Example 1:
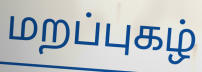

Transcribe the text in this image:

மறப்புகழ்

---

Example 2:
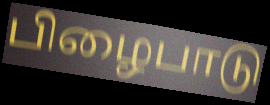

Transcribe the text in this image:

பிழைபாடு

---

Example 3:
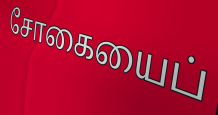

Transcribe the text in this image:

சோகையைப்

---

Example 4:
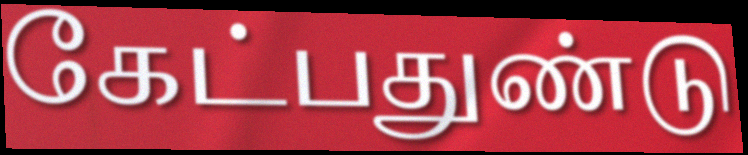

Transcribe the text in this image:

கேட்பதுண்டு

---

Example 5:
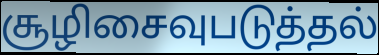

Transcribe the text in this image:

சூழிசைவுபடுத்தல்